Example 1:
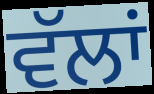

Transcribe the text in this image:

ਵੱਲਾਂ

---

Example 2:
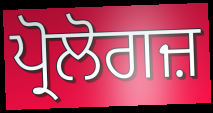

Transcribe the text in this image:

ਪ੍ਰੋਲੋਗਜ਼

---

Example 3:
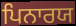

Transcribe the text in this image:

ਪਿਨਾਰਯ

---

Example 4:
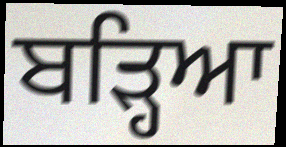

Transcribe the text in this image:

ਬੜ੍ਹਿਆ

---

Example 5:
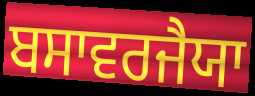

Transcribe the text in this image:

ਬਸਾਵਰਜੈਯਾ